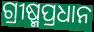
ଗ୍ରୀଷ୍ମପ୍ରଧାନ